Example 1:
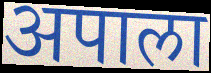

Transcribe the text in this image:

अपाला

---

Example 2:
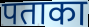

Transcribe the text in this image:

पताका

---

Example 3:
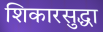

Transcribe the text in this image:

शिकारसुद्धा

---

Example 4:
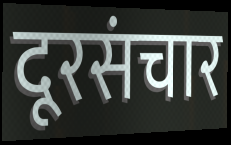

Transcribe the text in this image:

दूरसंचार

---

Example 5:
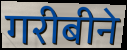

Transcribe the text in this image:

गरीबीने